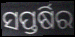
ସପ୍ତର୍ଷିର